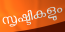
സൃഷ്ടികളും